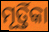
ମୂର୍ତ୍ତିକା